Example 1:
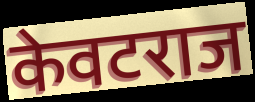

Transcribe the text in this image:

केवटराज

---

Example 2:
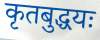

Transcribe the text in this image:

कृतबुद्धयः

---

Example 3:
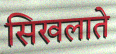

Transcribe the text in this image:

सिखलाते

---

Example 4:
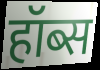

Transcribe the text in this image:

हॉब्स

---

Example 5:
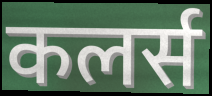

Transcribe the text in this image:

कलर्स